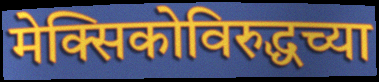
मेक्सिकोविरुद्धच्या